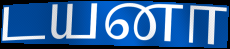
டயனா